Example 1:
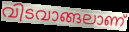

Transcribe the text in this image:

വിടവാങ്ങലാണ്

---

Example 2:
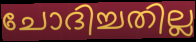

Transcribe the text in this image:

ചോദിച്ചതില്ല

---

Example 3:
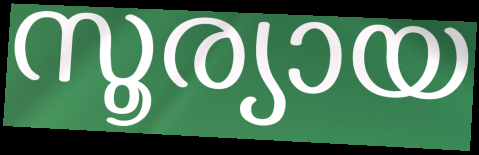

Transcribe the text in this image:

സൂര്യായ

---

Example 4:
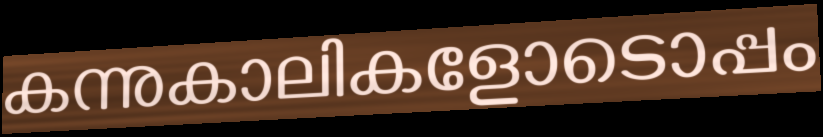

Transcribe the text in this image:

കന്നുകാലികളോടൊപ്പം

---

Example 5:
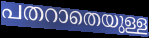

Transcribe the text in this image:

പതറാതെയുള്ള